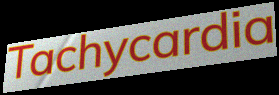
Tachycardia